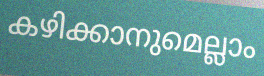
കഴിക്കാനുമെല്ലാം